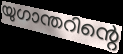
യുഗാന്തറിന്റെ